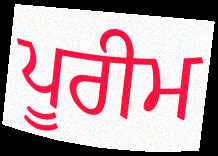
ਪੂਰੀਮ